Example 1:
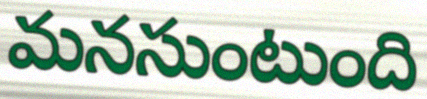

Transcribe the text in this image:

మనసుంటుంది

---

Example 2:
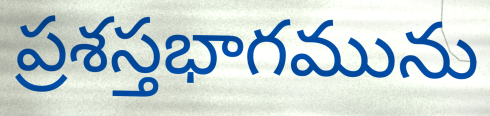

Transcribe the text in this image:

ప్రశస్తభాగమును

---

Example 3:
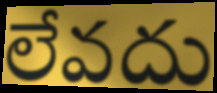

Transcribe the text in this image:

లేవదు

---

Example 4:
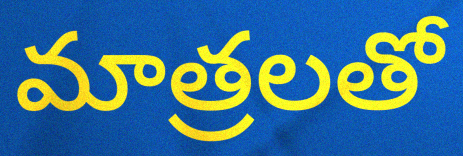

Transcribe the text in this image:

మాత్రలతో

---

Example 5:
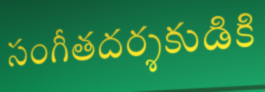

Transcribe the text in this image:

సంగీతదర్శకుడికి